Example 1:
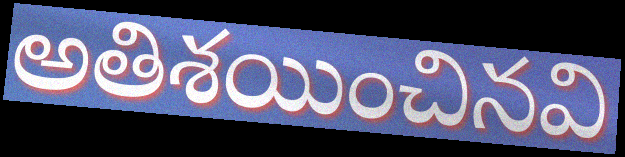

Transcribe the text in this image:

అతిశయించినవి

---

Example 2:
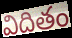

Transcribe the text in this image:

విదితం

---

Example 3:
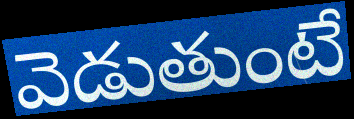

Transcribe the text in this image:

వెడుతుంటే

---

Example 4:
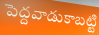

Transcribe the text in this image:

పెద్దవాడుకాబట్టి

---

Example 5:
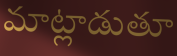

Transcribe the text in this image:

మాట్లాడుతూ